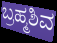
ಬ್ರಹ್ಮಶಿವ